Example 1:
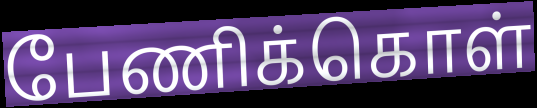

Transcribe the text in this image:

பேணிக்கொள்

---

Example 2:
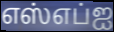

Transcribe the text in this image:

எஸ்எப்ஐ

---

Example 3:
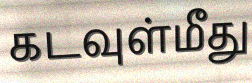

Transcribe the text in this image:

கடவுள்மீது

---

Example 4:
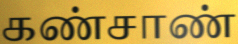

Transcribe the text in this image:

கண்சாண்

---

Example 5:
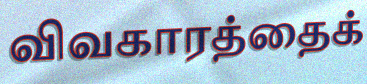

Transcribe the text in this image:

விவகாரத்தைக்